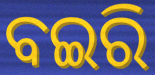
ବଇରି